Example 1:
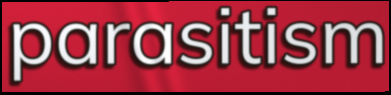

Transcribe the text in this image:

parasitism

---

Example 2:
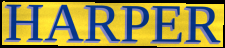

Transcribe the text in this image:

HARPER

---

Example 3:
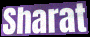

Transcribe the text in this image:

Sharat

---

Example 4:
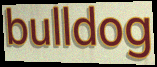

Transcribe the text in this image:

bulldog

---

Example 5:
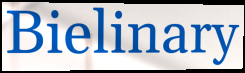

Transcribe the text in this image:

Bielinary